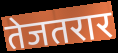
तेजतरार